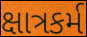
ક્ષાત્રકર્મ